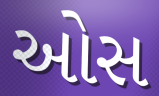
ઓસ